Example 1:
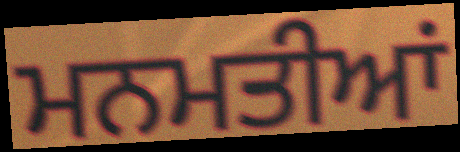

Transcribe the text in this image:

ਮਨਮਤੀਆਂ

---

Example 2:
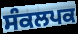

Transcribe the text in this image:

ਸੰਕਲਪਕ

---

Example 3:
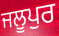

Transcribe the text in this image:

ਜਲੂਪੁਰ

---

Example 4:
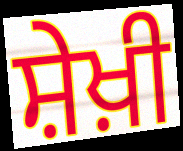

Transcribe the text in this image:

ਸ਼ੇਖ਼ੀ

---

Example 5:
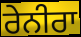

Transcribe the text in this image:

ਰੇਨੀਰਾ